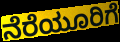
ನೆರೆಯೂರಿಗೆ